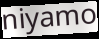
niyamo